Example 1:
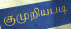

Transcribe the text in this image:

குமுறியபடி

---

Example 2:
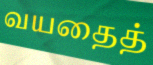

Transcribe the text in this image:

வயதைத்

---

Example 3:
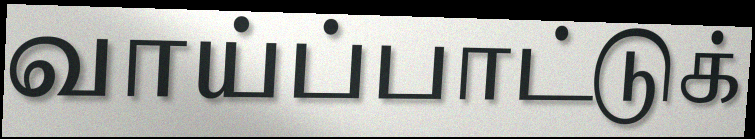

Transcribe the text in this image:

வாய்ப்பாட்டுக்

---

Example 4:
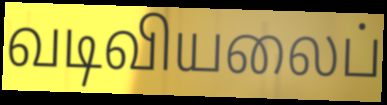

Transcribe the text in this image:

வடிவியலைப்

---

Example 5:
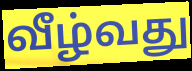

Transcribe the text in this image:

வீழ்வது